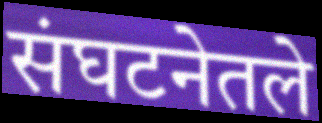
संघटनेतले